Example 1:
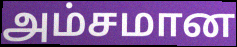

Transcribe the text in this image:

அம்சமான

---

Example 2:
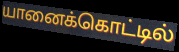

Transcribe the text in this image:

யானைக்கொட்டில்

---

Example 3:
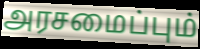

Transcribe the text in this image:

அரசமைப்பும்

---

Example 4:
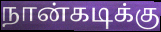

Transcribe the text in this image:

நான்கடிக்கு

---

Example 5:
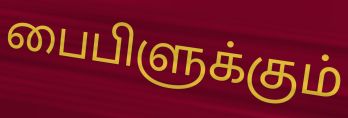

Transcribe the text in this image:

பைபிளுக்கும்